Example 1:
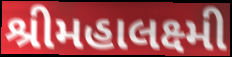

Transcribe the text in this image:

શ્રીમહાલક્ષ્મી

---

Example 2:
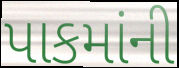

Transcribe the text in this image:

પાકમાંની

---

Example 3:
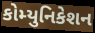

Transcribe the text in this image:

કોમ્યુનિકેશન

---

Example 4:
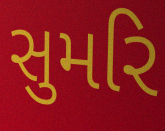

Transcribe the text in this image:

સુમરિ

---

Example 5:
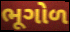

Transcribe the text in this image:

ભૂગોળ